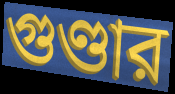
গুণ্ডার